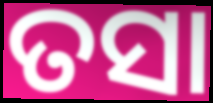
ତସା